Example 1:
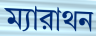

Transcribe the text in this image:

ম্যারাথন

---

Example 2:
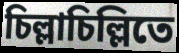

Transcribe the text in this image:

চিল্লাচিল্লিতে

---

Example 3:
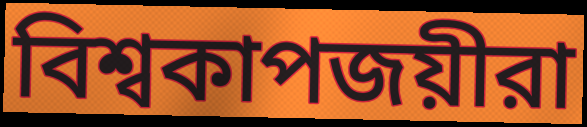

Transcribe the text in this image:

বিশ্বকাপজয়ীরা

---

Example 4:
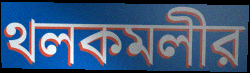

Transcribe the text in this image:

থলকমলীর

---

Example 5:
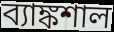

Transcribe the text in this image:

ব্যাঙ্কশাল